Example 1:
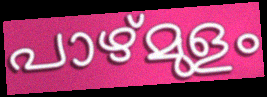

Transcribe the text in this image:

പാഴ്മുളം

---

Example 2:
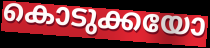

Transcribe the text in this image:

കൊടുക്കയോ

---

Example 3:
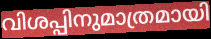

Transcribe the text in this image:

വിശപ്പിനുമാത്രമായി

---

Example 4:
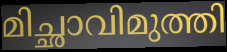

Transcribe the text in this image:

മിച്ഛാവിമുത്തി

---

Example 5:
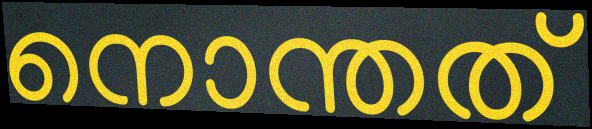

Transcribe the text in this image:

നൊന്തത്